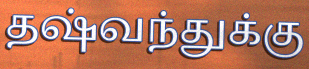
தஷ்வந்துக்கு